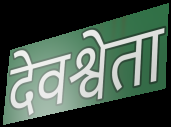
देवश्वेता